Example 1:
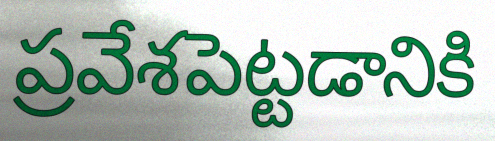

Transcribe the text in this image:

ప్రవేశపెట్టడానికి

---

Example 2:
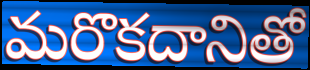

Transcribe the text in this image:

మరొకదానితో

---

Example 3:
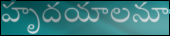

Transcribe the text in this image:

హృదయాలనూ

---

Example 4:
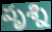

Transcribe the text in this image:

పృశ్ని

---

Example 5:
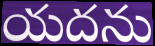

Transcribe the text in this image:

యదను